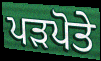
ਪੜਪੋਤੇ